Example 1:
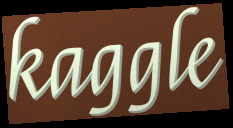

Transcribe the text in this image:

kaggle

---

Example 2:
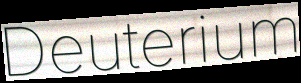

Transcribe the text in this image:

Deuterium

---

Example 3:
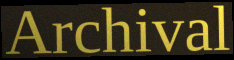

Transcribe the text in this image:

Archival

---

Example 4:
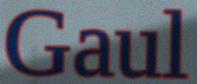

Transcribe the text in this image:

Gaul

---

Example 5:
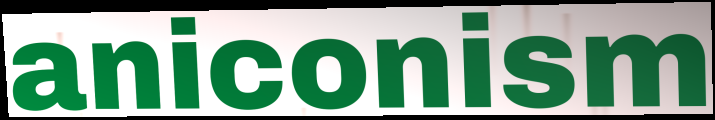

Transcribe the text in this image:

aniconism